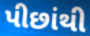
પીછાંથી